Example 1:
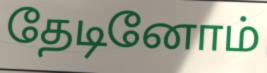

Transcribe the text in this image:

தேடினோம்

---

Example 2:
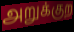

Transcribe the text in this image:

அறுக்குற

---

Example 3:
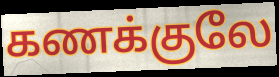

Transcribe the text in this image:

கணக்குலே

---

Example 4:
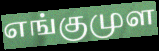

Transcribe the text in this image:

எங்குமுள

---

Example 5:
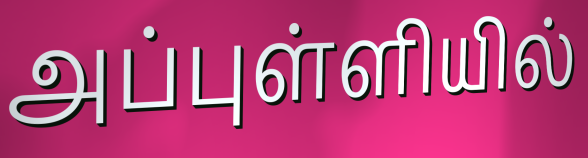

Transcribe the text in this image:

அப்புள்ளியில்